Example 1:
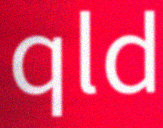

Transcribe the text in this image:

qld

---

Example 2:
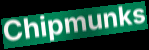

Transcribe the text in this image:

Chipmunks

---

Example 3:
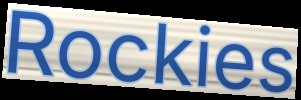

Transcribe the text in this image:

Rockies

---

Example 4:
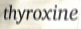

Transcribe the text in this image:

thyroxine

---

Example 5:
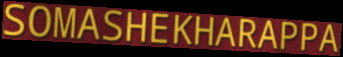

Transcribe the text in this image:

SOMASHEKHARAPPA